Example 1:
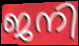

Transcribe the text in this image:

ജനി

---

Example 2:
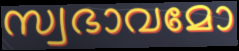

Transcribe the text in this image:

സ്വഭാവമോ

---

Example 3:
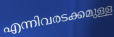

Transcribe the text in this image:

എന്നിവരടക്കമുള്ള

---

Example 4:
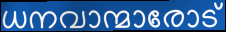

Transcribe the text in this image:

ധനവാന്മാരോട്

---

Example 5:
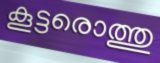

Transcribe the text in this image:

കൂട്ടരൊത്തു